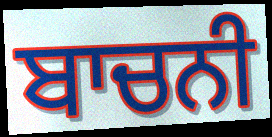
ਬਾਚਨੀ